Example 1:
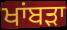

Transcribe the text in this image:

ਖਾਂਬੜਾ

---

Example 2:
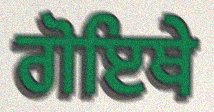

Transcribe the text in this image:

ਗੋਇਥੇ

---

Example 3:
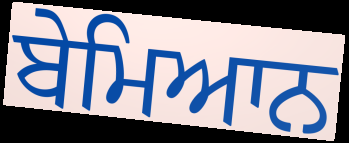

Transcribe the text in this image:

ਬੇਮਿਆਨ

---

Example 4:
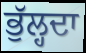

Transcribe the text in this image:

ਭੁੱਲ੍ਹਦਾ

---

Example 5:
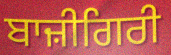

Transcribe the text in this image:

ਬਾਜ਼ੀਗਿਰੀ